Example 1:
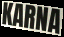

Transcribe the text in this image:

KARNA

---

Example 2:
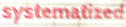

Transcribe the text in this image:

systematized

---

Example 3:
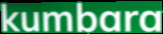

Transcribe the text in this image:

kumbara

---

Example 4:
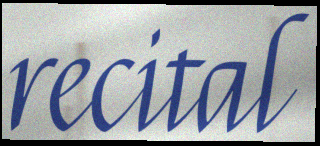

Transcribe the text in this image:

recital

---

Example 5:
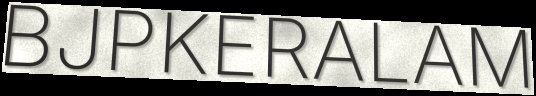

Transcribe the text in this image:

BJPKERALAM